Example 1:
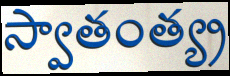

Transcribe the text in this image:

స్వాతంత్య్ర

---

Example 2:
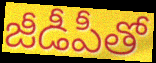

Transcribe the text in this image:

జీడీపీతో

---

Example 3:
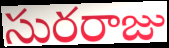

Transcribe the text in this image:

సురరాజు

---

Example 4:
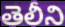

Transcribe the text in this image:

తెలీని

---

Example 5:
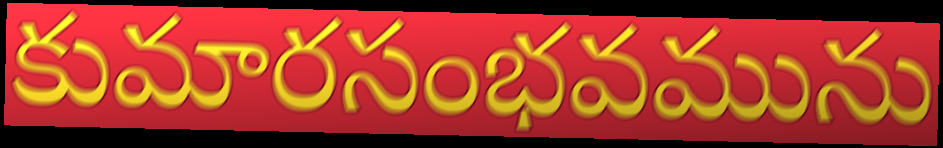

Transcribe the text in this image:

కుమారసంభవమును